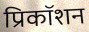
प्रिकॉशन